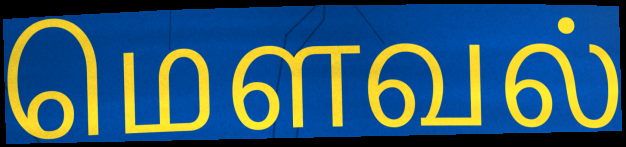
மௌவல்